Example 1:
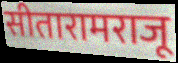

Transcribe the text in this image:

सीतारामराजू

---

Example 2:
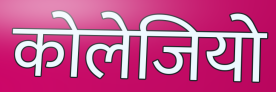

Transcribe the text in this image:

कोलेजियो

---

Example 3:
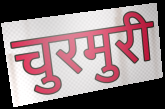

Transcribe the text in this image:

चुरमुरी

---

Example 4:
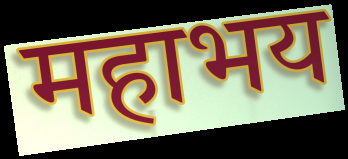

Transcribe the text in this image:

महाभय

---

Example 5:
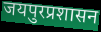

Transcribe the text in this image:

जयपुरप्रशासन